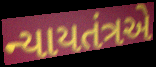
ન્યાયતંત્રએ